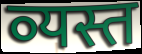
व्‍यस्‍त